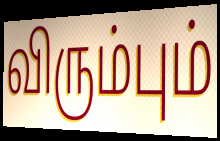
விரும்பும்